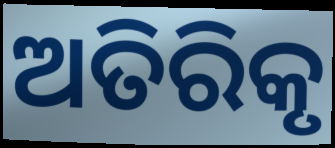
ଅତିରିକୃ